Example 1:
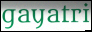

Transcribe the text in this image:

gayatri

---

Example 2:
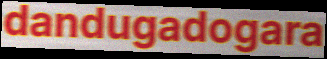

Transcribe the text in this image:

dandugadogara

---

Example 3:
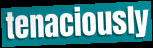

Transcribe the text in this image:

tenaciously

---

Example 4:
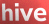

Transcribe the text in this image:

hive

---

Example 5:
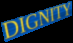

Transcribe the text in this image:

DIGNITY